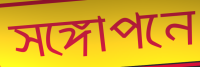
সঙ্গোপনে